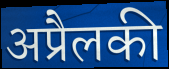
अप्रैलकी